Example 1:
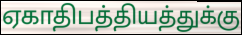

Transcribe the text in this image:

ஏகாதிபத்தியத்துக்கு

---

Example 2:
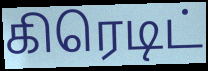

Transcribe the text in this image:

கிரெடிட்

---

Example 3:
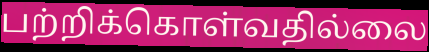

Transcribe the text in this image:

பற்றிக்கொள்வதில்லை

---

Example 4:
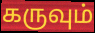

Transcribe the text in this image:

கருவும்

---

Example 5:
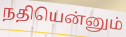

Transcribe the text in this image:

நதியென்னும்